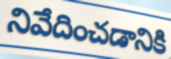
నివేదించడానికి